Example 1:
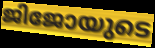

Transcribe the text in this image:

ജിജോയുടെ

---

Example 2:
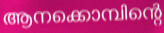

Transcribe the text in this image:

ആനക്കൊമ്പിന്റെ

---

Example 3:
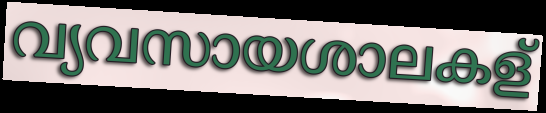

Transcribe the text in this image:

വ്യവസായശാലകള്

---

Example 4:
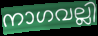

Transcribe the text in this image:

നാഗവല്ലി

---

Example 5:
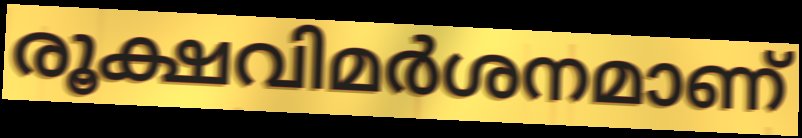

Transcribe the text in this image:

രൂക്ഷവിമർശനമാണ്